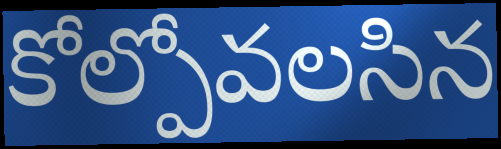
కోల్పోవలసిన